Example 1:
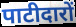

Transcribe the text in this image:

पाटीदारों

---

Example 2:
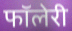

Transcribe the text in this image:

फॉलेरी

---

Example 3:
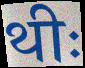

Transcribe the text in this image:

थीः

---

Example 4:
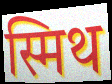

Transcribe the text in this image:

स्मिथ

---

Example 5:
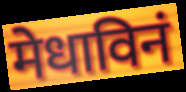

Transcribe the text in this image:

मेधाविनं